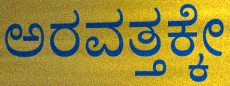
ಅರವತ್ತಕ್ಕೇ